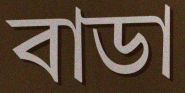
বাডা